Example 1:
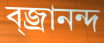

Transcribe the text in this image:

ব্জ্রানন্দ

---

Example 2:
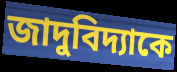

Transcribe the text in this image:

জাদুবিদ্যাকে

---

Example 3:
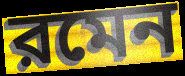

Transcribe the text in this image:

রমেন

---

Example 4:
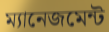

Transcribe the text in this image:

ম্যানেজমেন্ট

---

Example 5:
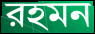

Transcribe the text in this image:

রহমন